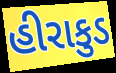
હીરાકુડ